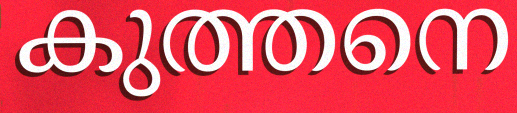
കുത്തനെ